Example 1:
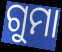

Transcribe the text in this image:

ଗୁମା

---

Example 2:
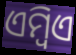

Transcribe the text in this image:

ଏମ୍ବିଏ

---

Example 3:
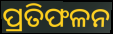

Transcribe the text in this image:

ପ୍ରତିଫଳନ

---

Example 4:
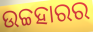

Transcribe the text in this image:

ଉଚ୍ଚହାରର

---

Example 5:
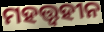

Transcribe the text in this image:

ମହତ୍ତ୍ବହୀନ